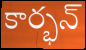
కార్భన్